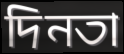
দিনতা